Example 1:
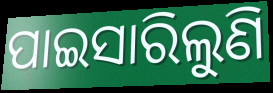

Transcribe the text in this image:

ପାଇସାରିଲୁଣି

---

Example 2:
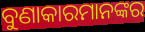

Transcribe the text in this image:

ବୁଣାକାରମାନଙ୍କର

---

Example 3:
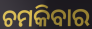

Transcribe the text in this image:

ଚମକିବାର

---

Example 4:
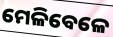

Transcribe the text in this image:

ମେଳିବେଳେ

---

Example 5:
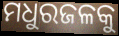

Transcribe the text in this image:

ମଧୁରଜଳକୁ